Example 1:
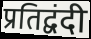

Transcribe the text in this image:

प्रतिद्वंदी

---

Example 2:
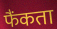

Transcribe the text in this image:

फैंकता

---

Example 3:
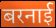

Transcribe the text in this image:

बरनाई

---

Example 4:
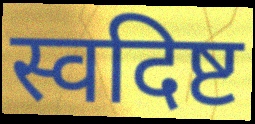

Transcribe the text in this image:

स्वदिष्ट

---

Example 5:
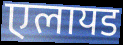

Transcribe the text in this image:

एलायड